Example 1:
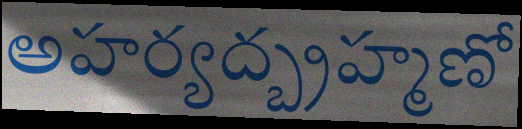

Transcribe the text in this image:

అహర్యద్బ్రహ్మణో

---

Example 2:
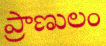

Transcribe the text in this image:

ప్రాణులం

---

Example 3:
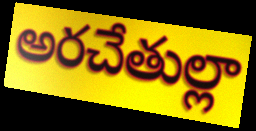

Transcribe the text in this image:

అరచేతుల్లా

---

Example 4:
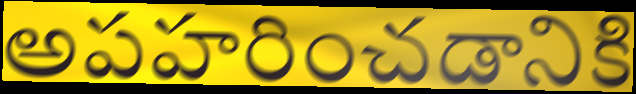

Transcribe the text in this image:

అపహరించడానికి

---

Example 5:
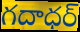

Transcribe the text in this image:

గదాధర్